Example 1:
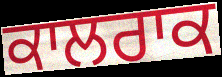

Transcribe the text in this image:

ਕਾਲਰਾਕ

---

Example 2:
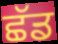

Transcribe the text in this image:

ਛੱਡ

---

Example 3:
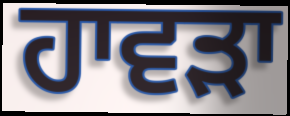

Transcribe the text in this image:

ਹਾਵਡ਼ਾ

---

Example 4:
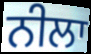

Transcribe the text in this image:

ਨੀਲਾ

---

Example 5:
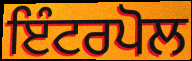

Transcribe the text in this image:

ਇੰਟਰਪੋਲ